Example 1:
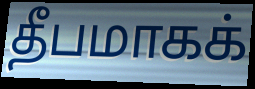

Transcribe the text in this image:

தீபமாகக்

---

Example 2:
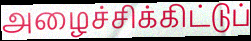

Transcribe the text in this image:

அழைச்சிக்கிட்டுப்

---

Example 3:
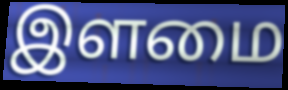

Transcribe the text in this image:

இளமை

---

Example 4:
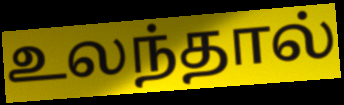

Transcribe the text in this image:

உலந்தால்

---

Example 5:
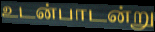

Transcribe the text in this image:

உடன்பாடன்று